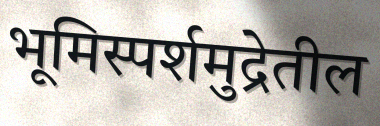
भूमिस्पर्शमुद्रेतील